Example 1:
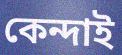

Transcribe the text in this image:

কেন্দাই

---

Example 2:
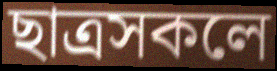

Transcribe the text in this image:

ছাত্ৰসকলে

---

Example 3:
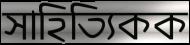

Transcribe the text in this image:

সাহিত্যিকক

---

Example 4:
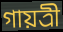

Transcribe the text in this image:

গায়ত্ৰী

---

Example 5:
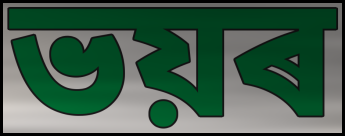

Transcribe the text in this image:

ভয়ৰ